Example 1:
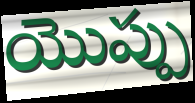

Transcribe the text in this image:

యొప్పు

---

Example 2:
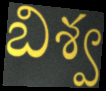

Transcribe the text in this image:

బిశ్వ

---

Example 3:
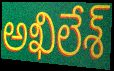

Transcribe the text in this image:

అఖిలేశ్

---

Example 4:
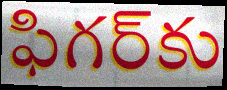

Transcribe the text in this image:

ఫిగర్‌కు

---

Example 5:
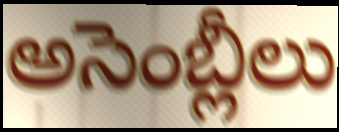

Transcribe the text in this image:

అసెంబ్లీలు